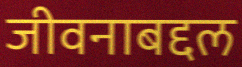
जीवनाबद्दल